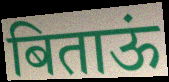
बिताऊं